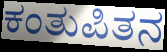
ಕಂತುಪಿತನ